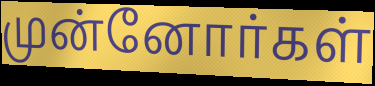
முன்னோர்கள்